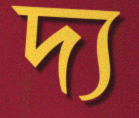
দ্য